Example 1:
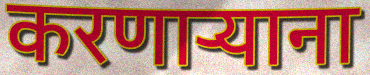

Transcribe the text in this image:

करणाऱ्याना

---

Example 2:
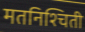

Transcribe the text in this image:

मतनिश्चिती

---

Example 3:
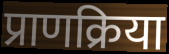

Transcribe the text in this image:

प्राणक्रिया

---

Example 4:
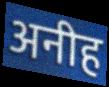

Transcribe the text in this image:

अनीह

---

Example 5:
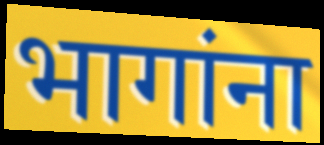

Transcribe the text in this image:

भागांना